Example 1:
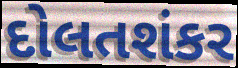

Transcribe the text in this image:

દોલતશંકર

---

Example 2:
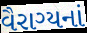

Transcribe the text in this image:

વૈરાગ્યનાં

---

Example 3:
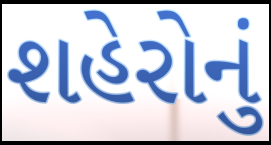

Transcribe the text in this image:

શહેરોનું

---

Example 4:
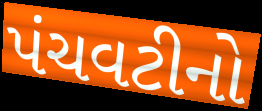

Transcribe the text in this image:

પંચવટીનો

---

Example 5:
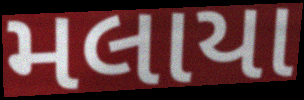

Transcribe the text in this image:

મલાયા